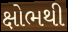
ક્ષોભથી